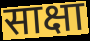
साक्षा